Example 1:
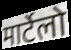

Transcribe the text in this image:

मार्टेलो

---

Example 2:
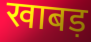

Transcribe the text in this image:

खाबड़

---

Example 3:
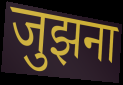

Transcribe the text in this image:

जुझना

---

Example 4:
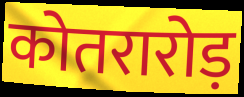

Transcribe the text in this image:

कोतरारोड़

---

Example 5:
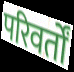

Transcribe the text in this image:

परिवर्तों